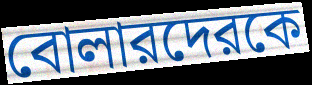
বোলারদেরকে